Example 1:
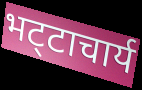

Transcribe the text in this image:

भट्‍टाचार्य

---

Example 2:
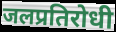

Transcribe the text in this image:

जलप्रतिरोधी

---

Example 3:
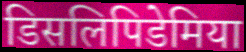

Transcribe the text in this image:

डिसलिपिडेमिया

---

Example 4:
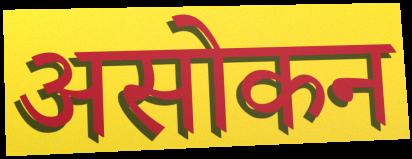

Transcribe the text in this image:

असोकन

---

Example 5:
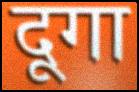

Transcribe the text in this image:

दूगा